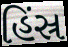
હિંસ્ર